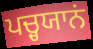
ਪਚ੍ਚਯਾਨਂ